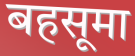
बहसूमा